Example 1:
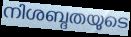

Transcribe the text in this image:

നിശബ്ദതയുടെ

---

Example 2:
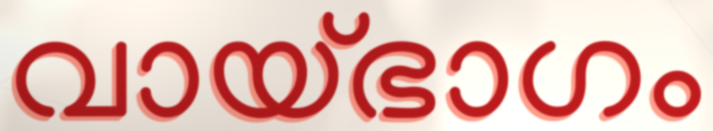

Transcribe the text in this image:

വായ്ഭാഗം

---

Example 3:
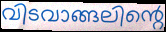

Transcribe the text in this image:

വിടവാങ്ങലിന്റെ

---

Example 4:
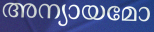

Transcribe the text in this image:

അന്യായമോ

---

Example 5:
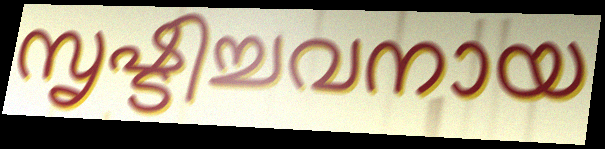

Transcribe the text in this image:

സൃഷ്ടിച്ചവനായ